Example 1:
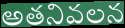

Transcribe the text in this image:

అతనివలన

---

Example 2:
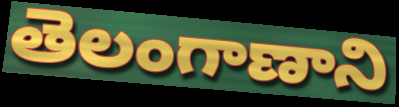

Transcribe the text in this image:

తెలంగాణాని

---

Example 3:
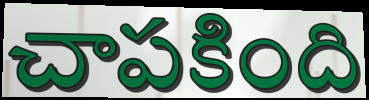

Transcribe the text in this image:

చాపకింది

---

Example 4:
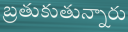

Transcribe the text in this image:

బ్రతుకుతున్నారు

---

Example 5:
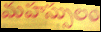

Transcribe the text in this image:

మహస్సులం